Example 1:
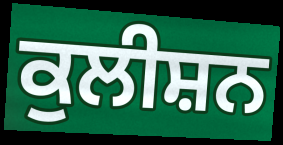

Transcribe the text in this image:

ਕੁਲੀਸ਼ਨ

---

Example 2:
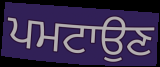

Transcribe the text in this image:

ਪਮਟਾਉਣ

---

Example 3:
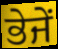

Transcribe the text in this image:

ਭੇਜੇਂ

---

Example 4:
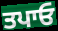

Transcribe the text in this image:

ਤਪਾਓ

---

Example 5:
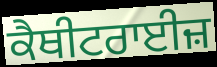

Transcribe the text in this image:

ਕੈਥੀਟਰਾਈਜ਼